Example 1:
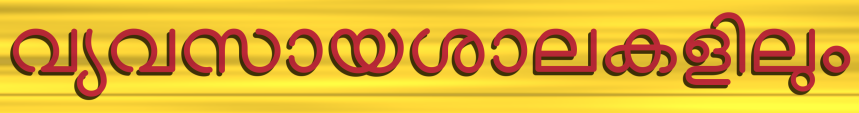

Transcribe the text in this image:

വ്യവസായശാലകളിലും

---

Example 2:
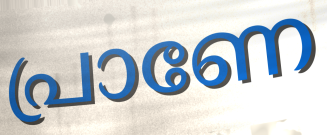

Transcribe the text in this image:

പ്രാണേ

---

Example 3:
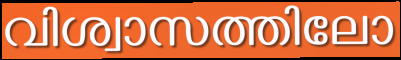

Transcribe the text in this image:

വിശ്വാസത്തിലോ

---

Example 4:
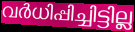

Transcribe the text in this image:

വർധിപ്പിച്ചിട്ടില്ല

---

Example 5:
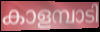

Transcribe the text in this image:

കാളമ്പാടി